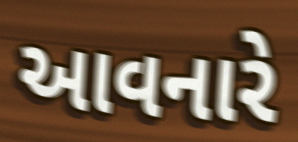
આવનારે